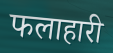
फलाहारी